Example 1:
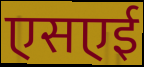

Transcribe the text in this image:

एसएई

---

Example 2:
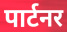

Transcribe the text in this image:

पार्टनर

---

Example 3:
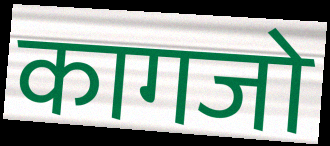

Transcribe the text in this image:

कागजो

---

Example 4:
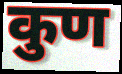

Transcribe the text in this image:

कुण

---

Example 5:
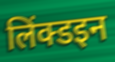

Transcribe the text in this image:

लिंक्डइन